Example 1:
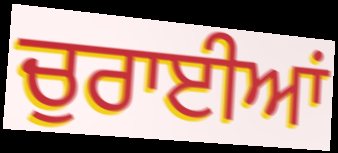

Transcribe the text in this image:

ਚੁਰਾਈਆਂ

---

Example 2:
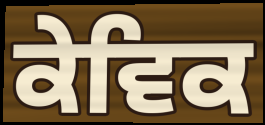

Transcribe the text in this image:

ਕੇਵਿਕ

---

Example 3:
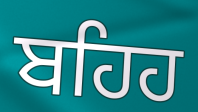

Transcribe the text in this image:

ਬਹਿਹ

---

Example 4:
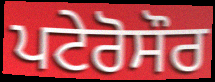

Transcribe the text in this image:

ਪਟੇਰੋਸੌਰ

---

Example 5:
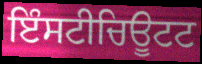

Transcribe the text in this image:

ਇੰਸਟੀਚਿਊਟਟ